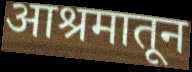
आश्रमातून